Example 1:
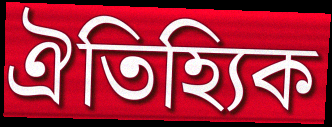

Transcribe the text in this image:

ঐতিহ্যিক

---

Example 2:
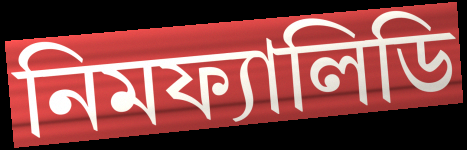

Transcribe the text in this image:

নিমফ্যালিডি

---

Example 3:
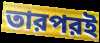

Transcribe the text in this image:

তারপরই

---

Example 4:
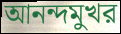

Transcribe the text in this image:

আনন্দমুখর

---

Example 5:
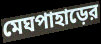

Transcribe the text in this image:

মেঘপাহাড়ের